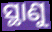
ସ୍ଥାଣୁ